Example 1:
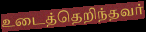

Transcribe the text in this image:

உடைத்தெறிந்தவர்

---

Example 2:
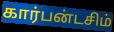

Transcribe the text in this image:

கார்பன்டசிம்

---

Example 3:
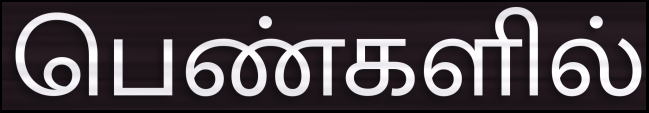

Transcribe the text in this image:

பெண்களில்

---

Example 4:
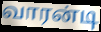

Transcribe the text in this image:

வாரன்டி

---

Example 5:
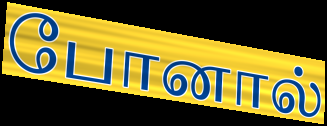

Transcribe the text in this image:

போனால்